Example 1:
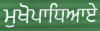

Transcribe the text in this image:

ਮੁਖੋਪਾਧਿਆਏ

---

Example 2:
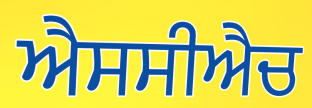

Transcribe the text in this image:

ਐਸਸੀਐਚ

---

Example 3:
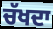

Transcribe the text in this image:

ਚੱਖਦਾ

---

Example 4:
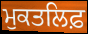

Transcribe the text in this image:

ਮੁਕਤਲਿਫ਼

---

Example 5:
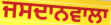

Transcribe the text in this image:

ਜਸਦਾਨਵਾਲਾ